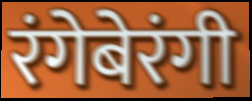
रंगेबेरंगी